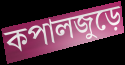
কপালজুড়ে